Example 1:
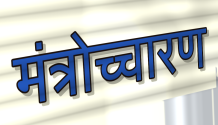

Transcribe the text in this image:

मंत्रोच्चारण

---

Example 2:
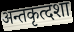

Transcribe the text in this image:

अन्तकृत्दशा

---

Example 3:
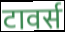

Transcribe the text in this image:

टावर्स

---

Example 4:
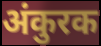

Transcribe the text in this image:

अंकुरक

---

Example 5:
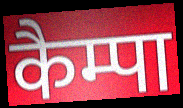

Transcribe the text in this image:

कैम्पा